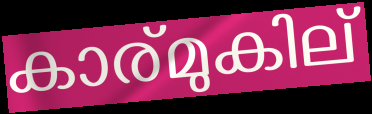
കാര്മുകില്